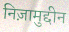
निज़ामुद्दीन